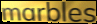
marbles